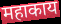
महाकाय